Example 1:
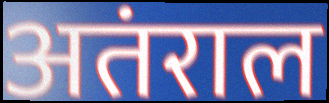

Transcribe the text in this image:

अतंराल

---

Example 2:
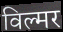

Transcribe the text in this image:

विल्मर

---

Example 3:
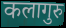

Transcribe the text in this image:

कलागुरु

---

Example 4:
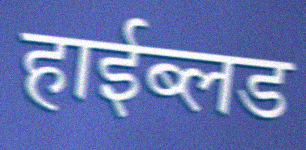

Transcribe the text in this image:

हाईब्लड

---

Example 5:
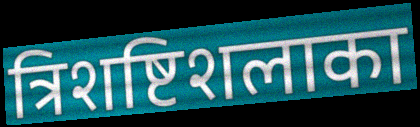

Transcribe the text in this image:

त्रिशष्टिशलाका